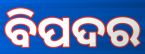
ବିପଦର